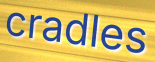
cradles